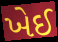
ખેઈ